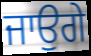
ਜਾਉਗੇ